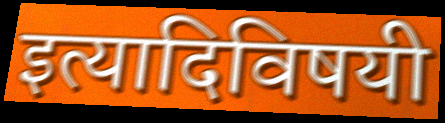
इत्यादिविषयी